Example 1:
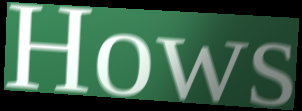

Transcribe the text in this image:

Hows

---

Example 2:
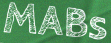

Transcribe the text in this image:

MABs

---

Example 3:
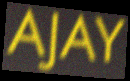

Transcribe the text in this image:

AJAY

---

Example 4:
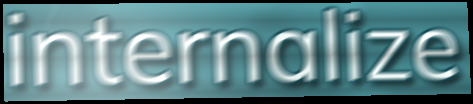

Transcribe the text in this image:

internalize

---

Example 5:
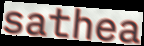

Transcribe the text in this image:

sathea